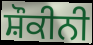
ਸ਼ੌਕੀਨੀ